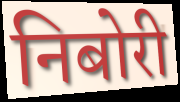
निबोरी